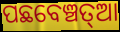
ପଛବେଞ୍ଚତ୍ଆ